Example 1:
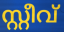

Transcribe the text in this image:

സ്റ്റീവ്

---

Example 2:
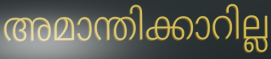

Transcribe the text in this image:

അമാന്തിക്കാറില്ല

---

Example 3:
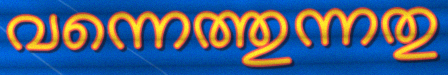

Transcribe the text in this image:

വന്നെത്തുന്നതു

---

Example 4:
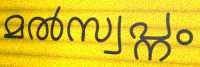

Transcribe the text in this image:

മൽസ്വപ്നം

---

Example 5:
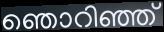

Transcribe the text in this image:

ഞൊറിഞ്ഞ്